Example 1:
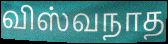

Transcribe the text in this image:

விஸ்வநாத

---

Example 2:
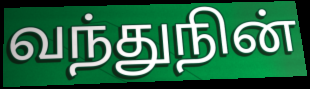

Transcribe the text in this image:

வந்துநின்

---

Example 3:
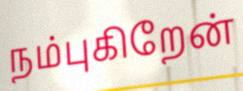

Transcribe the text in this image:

நம்புகிறேன்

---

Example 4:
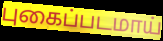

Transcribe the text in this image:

புகைப்படமாய்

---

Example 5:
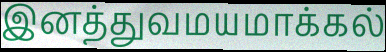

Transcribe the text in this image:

இனத்துவமயமாக்கல்